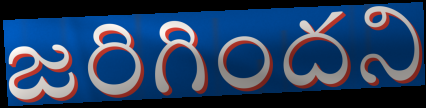
జరిగిందని